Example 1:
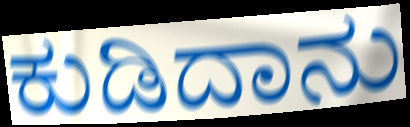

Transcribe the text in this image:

ಕುಡಿದಾನು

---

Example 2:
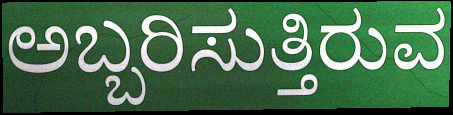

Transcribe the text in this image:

ಅಬ್ಬರಿಸುತ್ತಿರುವ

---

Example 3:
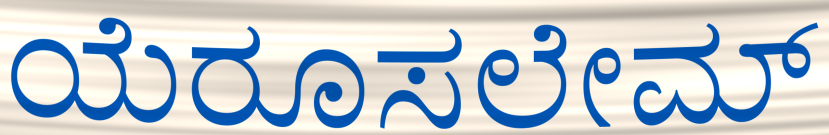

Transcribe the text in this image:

ಯೆರೂಸಲೇಮ್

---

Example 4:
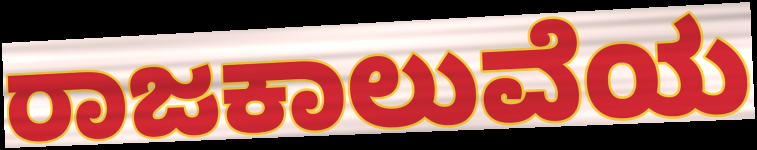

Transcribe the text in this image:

ರಾಜಕಾಲುವೆಯ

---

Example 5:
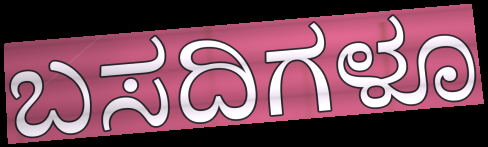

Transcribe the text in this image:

ಬಸದಿಗಳೂ